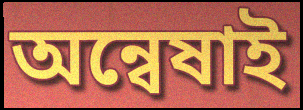
অন্বেষাই